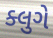
ક્લુગે